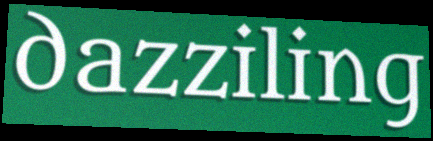
dazziling